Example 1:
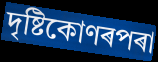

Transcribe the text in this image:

দৃষ্টিকোণৰপৰা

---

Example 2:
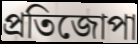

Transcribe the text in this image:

প্ৰতিজোপা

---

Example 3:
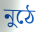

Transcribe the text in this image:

নুঠে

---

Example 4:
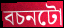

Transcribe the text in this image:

বচনটো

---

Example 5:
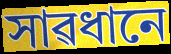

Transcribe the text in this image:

সাৱধানে